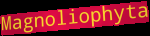
Magnoliophyta